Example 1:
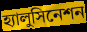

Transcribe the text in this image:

হ্যালুসিনেশন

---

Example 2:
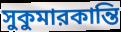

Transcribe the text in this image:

সুকুমারকান্তি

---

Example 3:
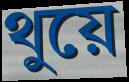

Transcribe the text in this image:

থুয়ে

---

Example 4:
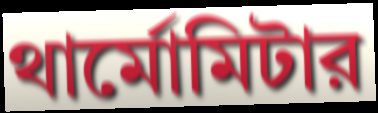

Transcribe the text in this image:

থার্মোমিটার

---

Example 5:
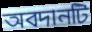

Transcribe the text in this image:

অবদানটি